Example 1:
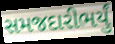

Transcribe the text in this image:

સમજદારીભર્યું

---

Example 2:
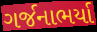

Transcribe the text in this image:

ગર્જનાભર્યા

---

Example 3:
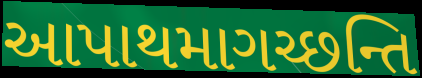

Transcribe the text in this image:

આપાથમાગચ્છન્તિ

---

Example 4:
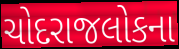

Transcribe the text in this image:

ચોદરાજલોકના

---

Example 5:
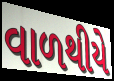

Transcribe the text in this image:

વાળથીયે